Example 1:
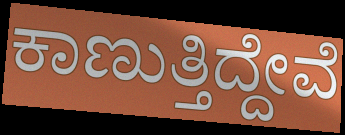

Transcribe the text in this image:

ಕಾಣುತ್ತಿದ್ದೇವೆ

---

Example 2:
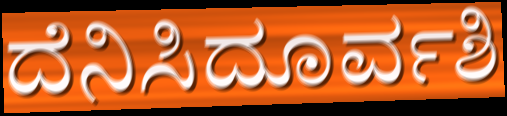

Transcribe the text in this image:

ದೆನಿಸಿದೂರ್ವಶಿ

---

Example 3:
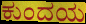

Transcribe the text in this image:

ಕುಂದಯ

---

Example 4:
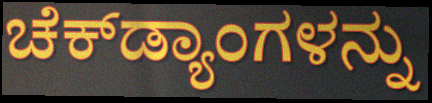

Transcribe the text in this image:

ಚೆಕ್‌ಡ್ಯಾಂಗಳನ್ನು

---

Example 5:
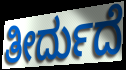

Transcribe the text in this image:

ತೀರ್ದುದೆ